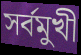
সর্বমুখী